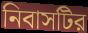
নিবাসটির